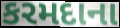
કરમદાના